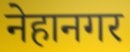
नेहानगर